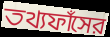
তথ্যফাঁসের